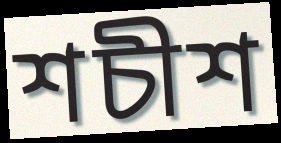
শচীশ